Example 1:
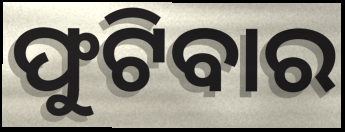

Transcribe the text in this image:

ଫୁଟିବାର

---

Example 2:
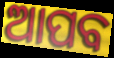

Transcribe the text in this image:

ଆପବ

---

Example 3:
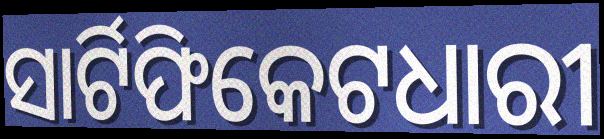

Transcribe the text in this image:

ସାର୍ଟିଫିକେଟଧାରୀ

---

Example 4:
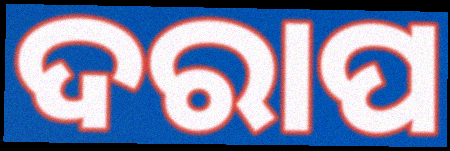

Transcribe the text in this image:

ଦରାପ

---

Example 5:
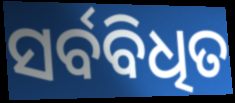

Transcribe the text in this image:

ସର୍ବବିଧିତ